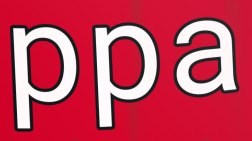
ppa